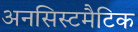
अनसिस्टमैटिक